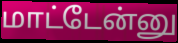
மாட்டேன்னு